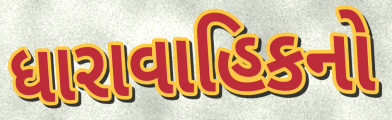
ધારાવાહિકનો